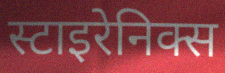
स्टाइरेनिक्स